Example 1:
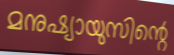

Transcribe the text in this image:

മനുഷ്യായുസിന്റെ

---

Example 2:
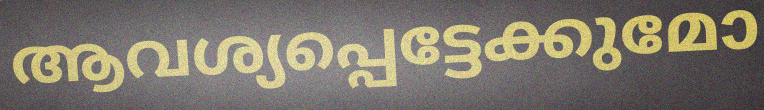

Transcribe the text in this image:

ആവശ്യപ്പെട്ടേക്കുമോ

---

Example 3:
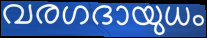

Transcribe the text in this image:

വരഗദായുധം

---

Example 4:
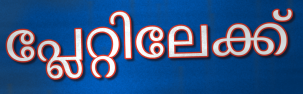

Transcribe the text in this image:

പ്ലേറ്റിലേക്ക്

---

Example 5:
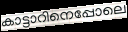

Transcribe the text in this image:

കാട്ടാറിനെപ്പോലെ